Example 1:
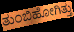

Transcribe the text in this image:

ತುಂಬಿಹೋಗಿತ್ತು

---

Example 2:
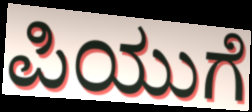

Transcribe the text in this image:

ಪಿಯುಗೆ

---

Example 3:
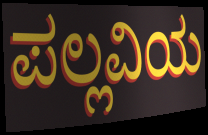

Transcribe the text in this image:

ಪಲ್ಲವಿಯ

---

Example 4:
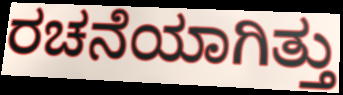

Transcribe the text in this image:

ರಚನೆಯಾಗಿತ್ತು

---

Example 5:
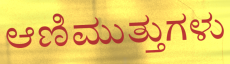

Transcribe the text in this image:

ಆಣಿಮುತ್ತುಗಳು